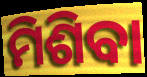
ମିଶିବା